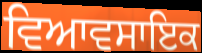
ਵਿਆਵਸਾਇਕ